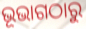
ଭୂଭାଗଠାରୁ